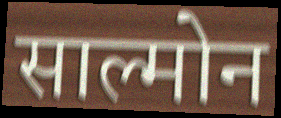
साल्मोन